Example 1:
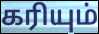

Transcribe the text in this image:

கரியும்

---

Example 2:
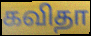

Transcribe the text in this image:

கவிதா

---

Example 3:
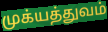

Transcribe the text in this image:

முக்யத்துவம்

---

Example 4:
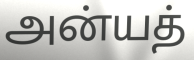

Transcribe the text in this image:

அன்யத்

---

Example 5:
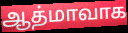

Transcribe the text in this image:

ஆத்மாவாக